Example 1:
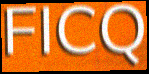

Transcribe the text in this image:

FICQ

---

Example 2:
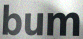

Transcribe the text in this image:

bum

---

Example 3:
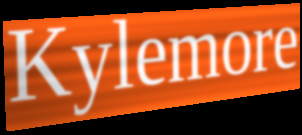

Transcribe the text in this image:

Kylemore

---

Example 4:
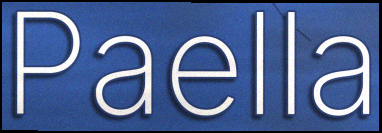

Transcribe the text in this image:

Paella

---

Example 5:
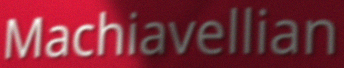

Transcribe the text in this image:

Machiavellian